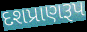
દશપ્રાણરૂપ